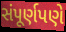
સંપૂર્ણપણે